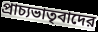
প্রাচ্যভাতৃবাদের